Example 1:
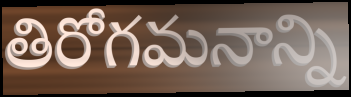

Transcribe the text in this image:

తిరోగమనాన్ని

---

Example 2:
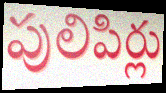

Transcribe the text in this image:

పులిపిర్లు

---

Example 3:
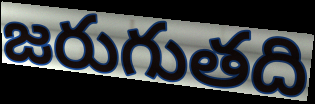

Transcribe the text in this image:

జరుగుతది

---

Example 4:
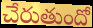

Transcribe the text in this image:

చేరుతుందో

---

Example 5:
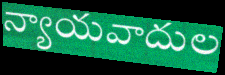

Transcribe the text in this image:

న్యాయవాదుల